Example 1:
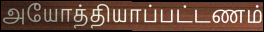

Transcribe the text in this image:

அயோத்தியாப்பட்டணம்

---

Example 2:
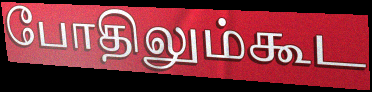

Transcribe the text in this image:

போதிலும்கூட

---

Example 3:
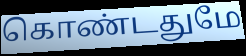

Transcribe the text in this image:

கொண்டதுமே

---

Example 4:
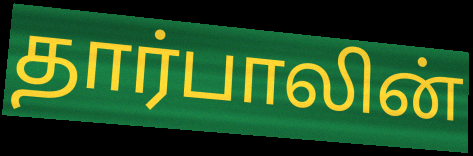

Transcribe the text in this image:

தார்பாலின்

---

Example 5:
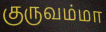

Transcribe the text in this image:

குருவம்மா